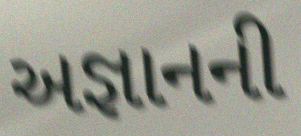
અજ્ઞાનની